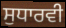
ਸੁਧਾਰਵੀ